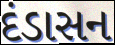
દંડાસન